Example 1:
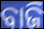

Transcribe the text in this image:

ବାଜି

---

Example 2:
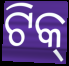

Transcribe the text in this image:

ଟିକ୍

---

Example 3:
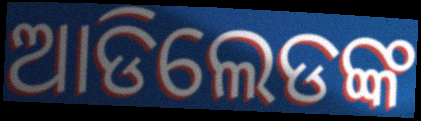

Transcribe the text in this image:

ଆଡିଲେଡଙ୍କ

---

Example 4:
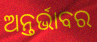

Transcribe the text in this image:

ଅନ୍ତର୍ଭାବର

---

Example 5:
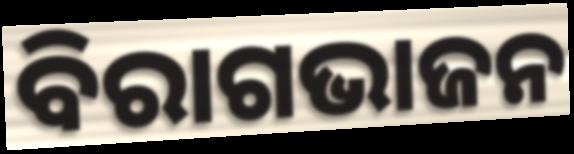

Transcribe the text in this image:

ବିରାଗଭାଜନ